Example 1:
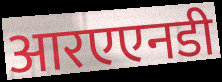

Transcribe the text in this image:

आरएएनडी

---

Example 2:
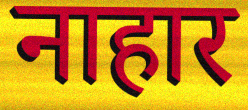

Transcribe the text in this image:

नाहार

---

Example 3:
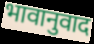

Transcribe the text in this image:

भावानुवाद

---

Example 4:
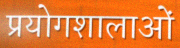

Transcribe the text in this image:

प्रयोगशालाओं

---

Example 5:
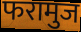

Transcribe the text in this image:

फरामुज